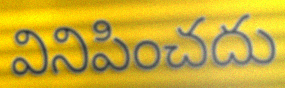
వినిపించదు